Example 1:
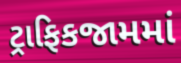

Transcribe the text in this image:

ટ્રાફિકજામમાં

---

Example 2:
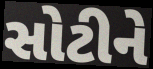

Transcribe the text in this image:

સોટીને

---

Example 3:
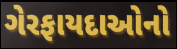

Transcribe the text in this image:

ગેરફાયદાઓનો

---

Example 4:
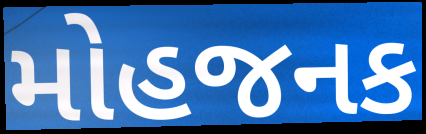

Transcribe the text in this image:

મોહજનક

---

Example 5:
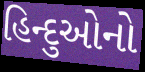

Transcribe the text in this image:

હિન્દુઓનો